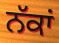
ਨੱਕਾਂ